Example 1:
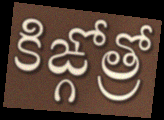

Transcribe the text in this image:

కిఙ్గోత్రో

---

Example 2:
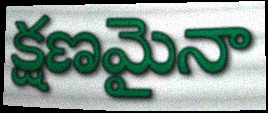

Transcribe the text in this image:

క్షణమైనా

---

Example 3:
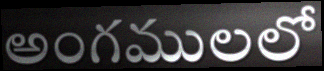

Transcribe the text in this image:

అంగములలో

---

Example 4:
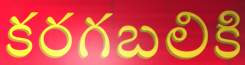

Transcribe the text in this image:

కరగబలికి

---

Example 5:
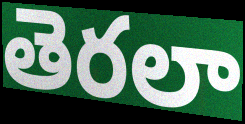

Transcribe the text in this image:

తెరలా